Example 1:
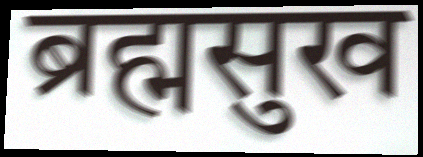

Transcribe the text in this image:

ब्रह्मसुख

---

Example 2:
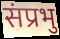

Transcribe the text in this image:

संप्रभु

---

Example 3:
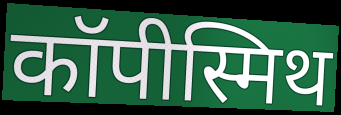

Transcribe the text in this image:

कॉपीस्मिथ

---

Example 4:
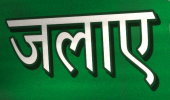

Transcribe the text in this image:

जलाए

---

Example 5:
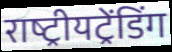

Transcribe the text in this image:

राष्ट्रीयट्रेंडिंग